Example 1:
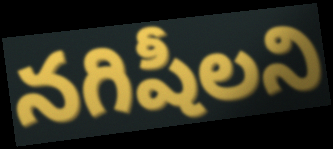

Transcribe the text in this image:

నగిషీలని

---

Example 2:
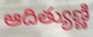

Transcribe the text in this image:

ఆదిత్యుణ్ణి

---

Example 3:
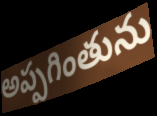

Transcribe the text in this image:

అప్పగింతును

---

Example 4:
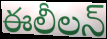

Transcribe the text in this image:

ఈలీలన్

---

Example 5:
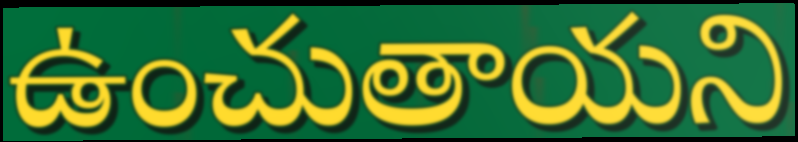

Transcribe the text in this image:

ఉంచుతాయని